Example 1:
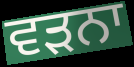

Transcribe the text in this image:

ਵੜਨਾ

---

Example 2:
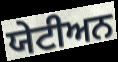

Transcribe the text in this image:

ਯੇਟੀਅਨ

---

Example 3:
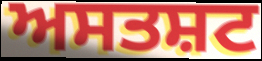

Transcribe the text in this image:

ਅਸਤਸ਼ਟ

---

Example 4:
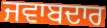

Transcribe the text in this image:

ਜਵਾਬਦਾਰ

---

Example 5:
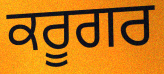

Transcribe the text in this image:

ਕਰੂਗਰ